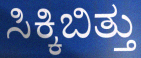
ಸಿಕ್ಕಿಬಿತ್ತು